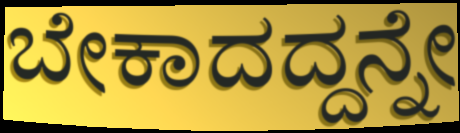
ಬೇಕಾದದ್ದನ್ನೇ